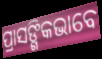
ପ୍ରାସଙ୍ଗିକଭାବେ